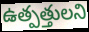
ఉత్పత్తులని